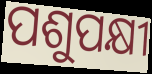
ପଶୁପକ୍ଷୀ